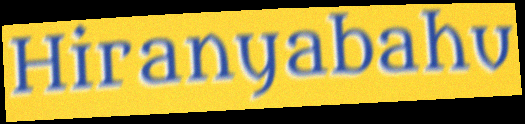
Hiranyabahu